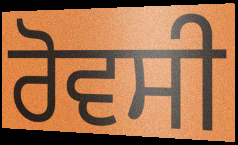
ਰੋਵਸੀ